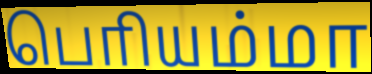
பெரியம்மா